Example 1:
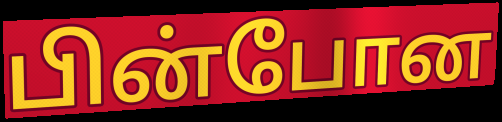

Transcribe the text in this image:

பின்போன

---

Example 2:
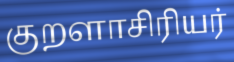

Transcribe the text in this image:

குறளாசிரியர்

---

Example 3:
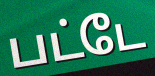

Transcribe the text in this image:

பட்டே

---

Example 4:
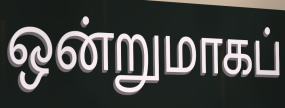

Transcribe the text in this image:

ஒன்றுமாகப்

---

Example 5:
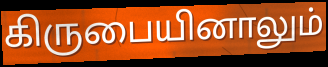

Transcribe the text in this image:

கிருபையினாலும்